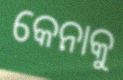
କେନାକୁ